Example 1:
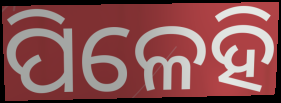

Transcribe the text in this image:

ପିଳେହି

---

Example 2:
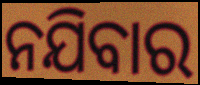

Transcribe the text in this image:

ନଯିବାର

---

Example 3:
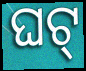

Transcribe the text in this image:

ଘଟ୍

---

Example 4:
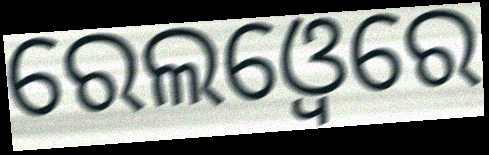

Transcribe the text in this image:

ରେଲଓ୍ୱେରେ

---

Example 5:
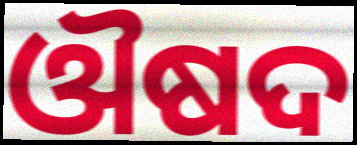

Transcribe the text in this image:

ଔଷଦ